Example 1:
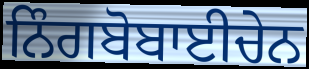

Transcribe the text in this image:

ਨਿੰਗਬੋਬਾਈਚੇਨ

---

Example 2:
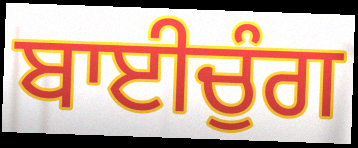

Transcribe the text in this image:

ਬਾਈਚੁੰਗ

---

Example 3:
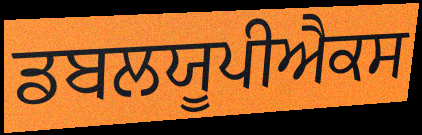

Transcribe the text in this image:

ਡਬਲਯੂਪੀਐਕਸ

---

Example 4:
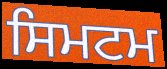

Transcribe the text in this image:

ਸਿਮਟਮ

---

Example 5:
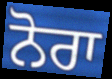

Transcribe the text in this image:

ਨੋਰਾ